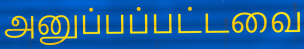
அனுப்பப்பட்டவை